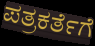
ಪತ್ರಕರ್ತೆಗೆ